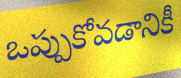
ఒప్పుకోవడానికీ